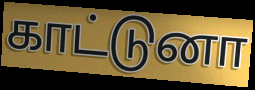
காட்டுனா